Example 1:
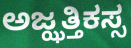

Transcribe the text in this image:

ಅಜ್ಝತ್ತಿಕಸ್ಸ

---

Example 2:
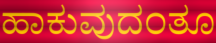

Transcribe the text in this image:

ಹಾಕುವುದಂತೂ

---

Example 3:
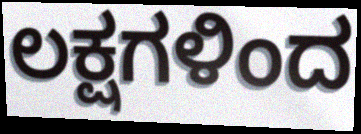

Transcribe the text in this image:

ಲಕ್ಷಗಳಿಂದ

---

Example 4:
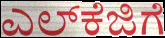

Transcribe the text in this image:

ಎಲ್‌ಕೆಜಿಗೆ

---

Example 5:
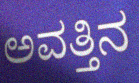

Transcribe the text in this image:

ಅವತ್ತಿನ